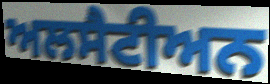
ਅਲਸੈਟੀਅਨ